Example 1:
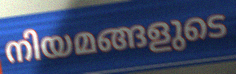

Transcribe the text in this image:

നിയമങ്ങളുടെ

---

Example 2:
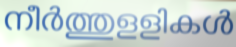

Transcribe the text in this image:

നീർത്തുളളികൾ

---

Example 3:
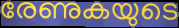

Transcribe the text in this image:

രേണുകയുടെ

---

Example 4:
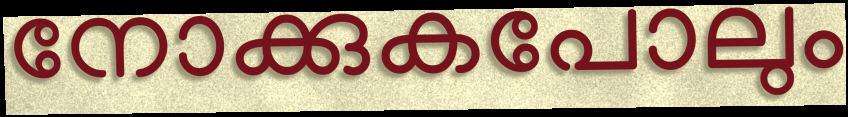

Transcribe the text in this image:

നോക്കുകപോലും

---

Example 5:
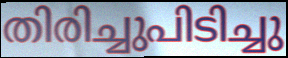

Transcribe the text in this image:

തിരിച്ചുപിടിച്ചു